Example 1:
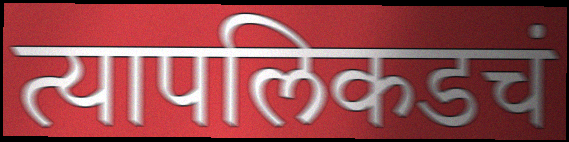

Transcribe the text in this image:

त्यापलिकडचं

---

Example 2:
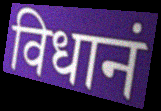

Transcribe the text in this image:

विधानं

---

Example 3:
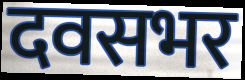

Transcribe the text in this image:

दवसभर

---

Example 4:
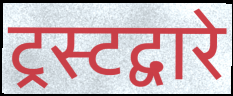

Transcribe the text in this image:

ट्रस्टद्वारे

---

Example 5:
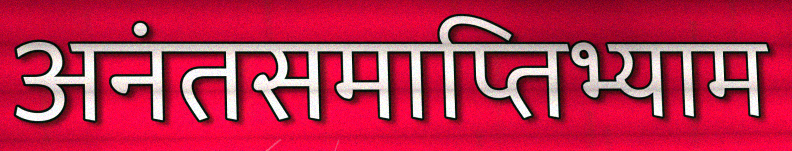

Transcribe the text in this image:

अनंतसमाप्तिभ्याम